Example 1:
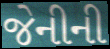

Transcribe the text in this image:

જેનીની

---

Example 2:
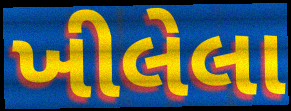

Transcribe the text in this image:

ખીલેલા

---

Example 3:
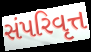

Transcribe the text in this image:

સંપરિવૃત્ત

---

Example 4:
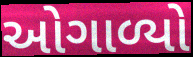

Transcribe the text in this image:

ઓગાળ્યો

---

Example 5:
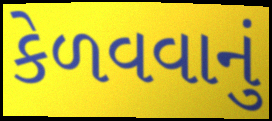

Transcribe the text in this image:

કેળવવાનું